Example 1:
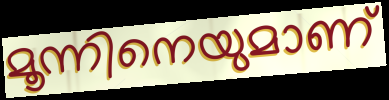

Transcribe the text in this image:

മൂന്നിനെയുമാണ്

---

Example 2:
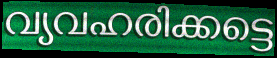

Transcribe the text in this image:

വ്യവഹരിക്കട്ടെ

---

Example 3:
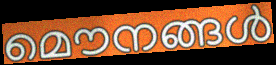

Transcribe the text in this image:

മൌനങ്ങൾ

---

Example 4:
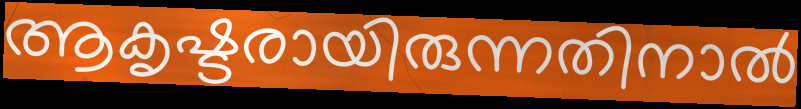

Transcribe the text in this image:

ആകൃഷ്ടരായിരുന്നതിനാൽ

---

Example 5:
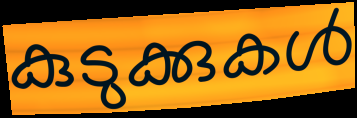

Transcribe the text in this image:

കുടുക്കുകൾ